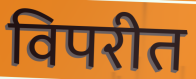
विपरीत